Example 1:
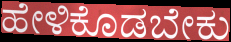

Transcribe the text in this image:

ಹೇಳಿಕೊಡಬೇಕು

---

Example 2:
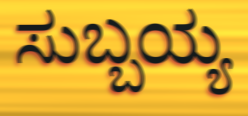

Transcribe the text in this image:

ಸುಬ್ಬಯ್ಯ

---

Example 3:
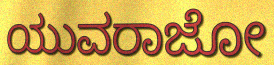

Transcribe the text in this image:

ಯುವರಾಜೋ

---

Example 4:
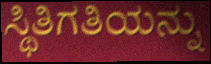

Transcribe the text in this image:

ಸ್ಥಿತಿಗತಿಯನ್ನು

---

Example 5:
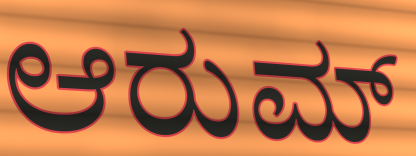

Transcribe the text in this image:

ಆರುಮ್